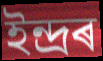
ইন্দ্ৰৰ